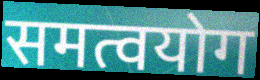
समत्वयोग